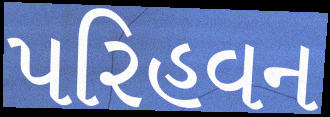
પરિહવન